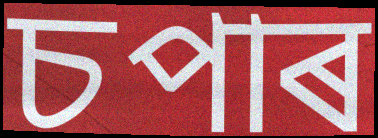
চপাৰ